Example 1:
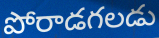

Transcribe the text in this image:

పోరాడగలడు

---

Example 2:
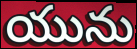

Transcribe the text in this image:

యును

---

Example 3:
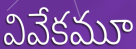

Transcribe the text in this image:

వివేకమూ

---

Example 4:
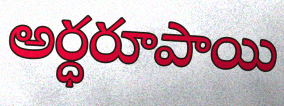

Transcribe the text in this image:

అర్ధరూపాయి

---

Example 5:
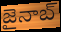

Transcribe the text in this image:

జైనాబ్